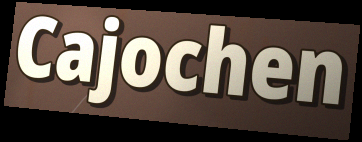
Cajochen